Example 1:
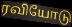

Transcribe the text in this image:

ரவியோடு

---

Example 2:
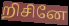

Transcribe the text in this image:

றிசினே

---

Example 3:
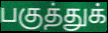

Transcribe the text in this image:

பகுத்துக்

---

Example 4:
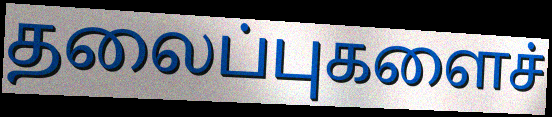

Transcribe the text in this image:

தலைப்புகளைச்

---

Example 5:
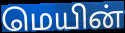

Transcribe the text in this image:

மெயின்